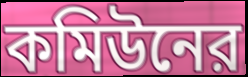
কমিউনের